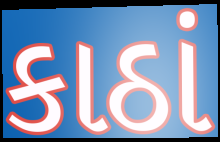
કાઠાં